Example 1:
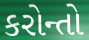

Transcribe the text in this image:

કરોન્તો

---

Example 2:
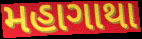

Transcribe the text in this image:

મહાગાથા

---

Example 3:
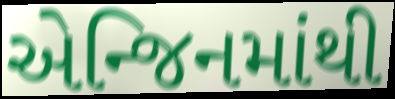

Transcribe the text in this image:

એન્જિનમાંથી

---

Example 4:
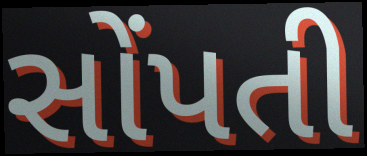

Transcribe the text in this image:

સોંપતી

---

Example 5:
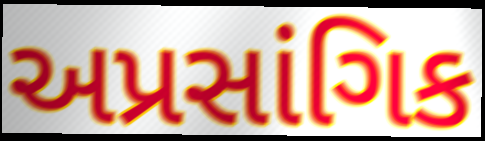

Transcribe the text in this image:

અપ્રસાંગિક